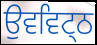
ਉਵਵਿਟ੍ਠ